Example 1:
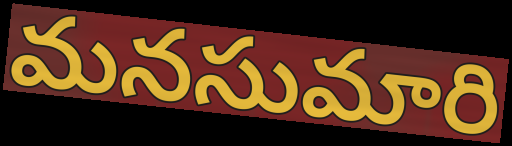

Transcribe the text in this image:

మనసుమారి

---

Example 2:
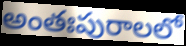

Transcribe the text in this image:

అంతఃపురాలలో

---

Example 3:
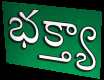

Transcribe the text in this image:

భక్త్యా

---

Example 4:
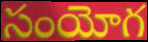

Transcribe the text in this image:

సంయోగ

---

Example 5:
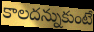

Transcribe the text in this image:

కాలదన్నుకుంటే